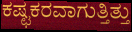
ಕಷ್ಟಕರವಾಗುತ್ತಿತ್ತು